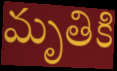
మృతికి